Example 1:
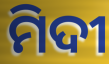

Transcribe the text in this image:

ମିଦୀ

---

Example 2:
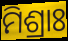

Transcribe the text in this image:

ମିଶ୍ରାଃ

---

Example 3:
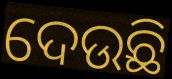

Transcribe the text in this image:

ଦେଉଛି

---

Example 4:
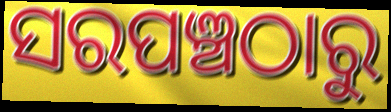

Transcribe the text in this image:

ସରପଞ୍ଚଠାରୁ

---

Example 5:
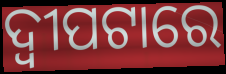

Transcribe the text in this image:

ଦ୍ୱୀପଟାରେ